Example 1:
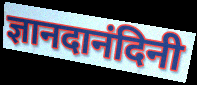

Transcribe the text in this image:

ज्ञानदानंदिनी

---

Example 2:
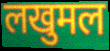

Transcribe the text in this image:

लखुमल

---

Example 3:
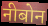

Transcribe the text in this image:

नीबोन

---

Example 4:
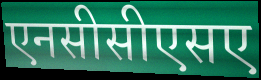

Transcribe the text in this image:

एनसीसीएसए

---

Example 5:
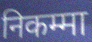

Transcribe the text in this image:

निकम्मा